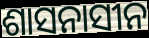
ଶାସନାସୀନ